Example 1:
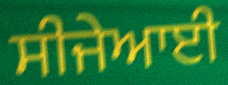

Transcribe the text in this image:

ਸੀਜੇਆਈ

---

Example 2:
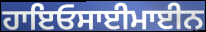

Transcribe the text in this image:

ਹਾਇਓਸਾਈਮਾਈਨ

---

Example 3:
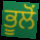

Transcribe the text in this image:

ਭੂਲੋਂ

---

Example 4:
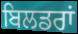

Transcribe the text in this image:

ਬਿਲਡਰਾਂ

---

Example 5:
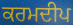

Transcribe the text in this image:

ਕਰਮਦੀਪ